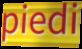
piedi